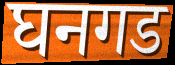
घनगड